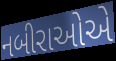
નબીરાઓએ